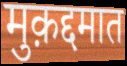
मुक़द्दमात